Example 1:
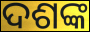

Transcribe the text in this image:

ଦଶଙ୍କ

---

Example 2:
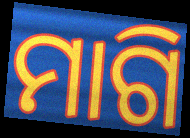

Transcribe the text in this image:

ମାଗି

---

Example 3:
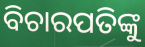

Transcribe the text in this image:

ବିଚାରପତିଙ୍କୁ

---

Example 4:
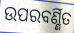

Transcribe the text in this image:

ଉପରବର୍ଣ୍ଣିତ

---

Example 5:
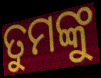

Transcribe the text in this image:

ତୁମଙ୍କୁ